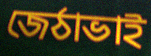
জেঠাভাই